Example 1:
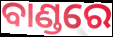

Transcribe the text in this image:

ବାଣ୍ଡରେ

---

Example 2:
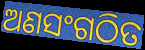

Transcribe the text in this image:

ଅଣସଂଗଠିତ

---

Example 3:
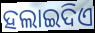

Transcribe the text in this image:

ହଲାଇଦିଏ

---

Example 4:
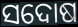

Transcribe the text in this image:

ସଦୋଷ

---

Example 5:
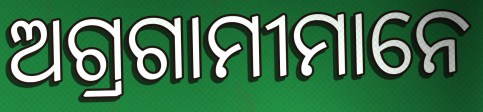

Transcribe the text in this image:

ଅଗ୍ରଗାମୀମାନେ